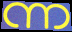
ന്ന